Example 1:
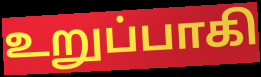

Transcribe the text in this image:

உறுப்பாகி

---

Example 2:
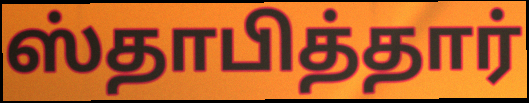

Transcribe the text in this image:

ஸ்தாபித்தார்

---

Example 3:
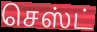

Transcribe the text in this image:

செஸ்ட்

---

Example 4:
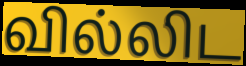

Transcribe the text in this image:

வில்லிட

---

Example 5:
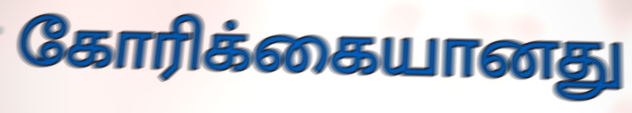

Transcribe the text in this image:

கோரிக்கையானது